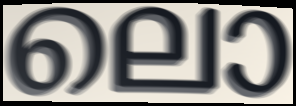
ലൊ